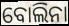
ବୋଲିନା